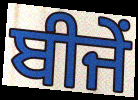
ਬੀਜੇਂ